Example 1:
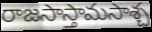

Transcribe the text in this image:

రాజసాస్తామసాశ్చ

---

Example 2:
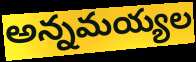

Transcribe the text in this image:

అన్నమయ్యల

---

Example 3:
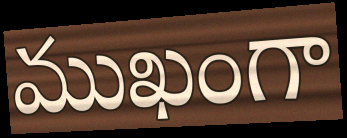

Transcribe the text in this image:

ముఖంగా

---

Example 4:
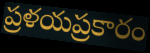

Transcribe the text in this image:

ప్రళయప్రకారం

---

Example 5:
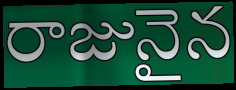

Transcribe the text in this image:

రాజునైన